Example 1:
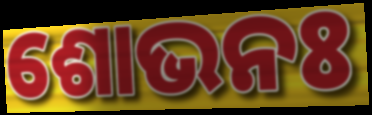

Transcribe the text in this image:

ଶୋଭନଃ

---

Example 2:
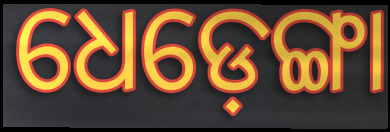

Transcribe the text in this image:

ଧେଡ଼େଙ୍ଗା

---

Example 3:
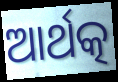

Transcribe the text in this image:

ଆର୍ଥତ୍କ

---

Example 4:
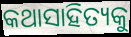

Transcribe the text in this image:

କଥାସାହିତ୍ୟକୁ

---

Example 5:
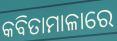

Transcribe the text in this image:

କବିତାମାଳାରେ